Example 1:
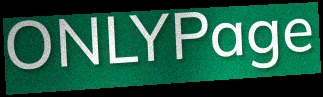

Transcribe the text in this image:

ONLYPage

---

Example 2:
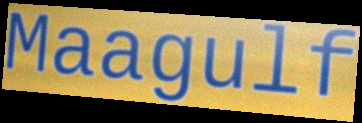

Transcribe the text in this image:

Maagulf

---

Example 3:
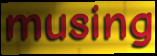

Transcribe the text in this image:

musing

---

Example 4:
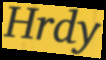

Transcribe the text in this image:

Hrdy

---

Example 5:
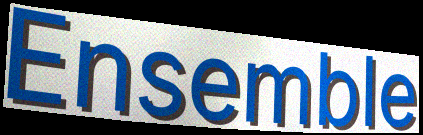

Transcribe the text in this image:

Ensemble